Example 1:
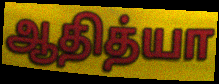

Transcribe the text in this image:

ஆதித்யா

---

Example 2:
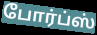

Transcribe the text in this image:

போர்ப்ஸ்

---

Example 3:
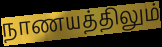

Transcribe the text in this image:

நாணயத்திலும்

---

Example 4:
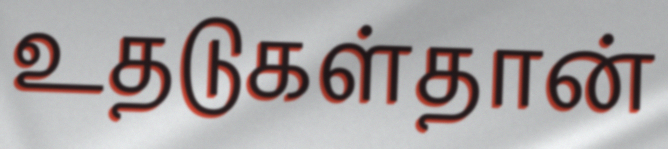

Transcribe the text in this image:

உதடுகள்தான்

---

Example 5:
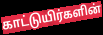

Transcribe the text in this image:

காட்டுயிர்களின்